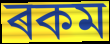
ৰকম